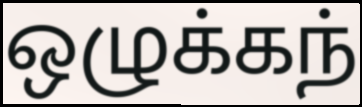
ஒழுக்கந்